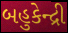
બહુકેન્દ્રી